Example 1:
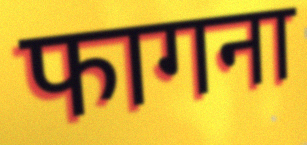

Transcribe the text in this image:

फागना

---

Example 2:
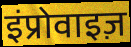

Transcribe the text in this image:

इंप्रोवाइज़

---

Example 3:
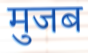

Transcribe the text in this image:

मुजब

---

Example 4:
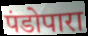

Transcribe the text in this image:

पंडोपारा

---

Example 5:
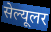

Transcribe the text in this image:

सेल्यूलर